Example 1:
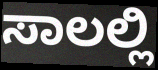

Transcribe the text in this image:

ಸಾಲಲ್ಲಿ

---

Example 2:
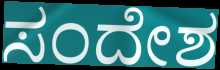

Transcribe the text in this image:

ಸಂದೇಶ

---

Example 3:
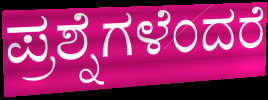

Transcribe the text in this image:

ಪ್ರಶ್ನೆಗಳೆಂದರೆ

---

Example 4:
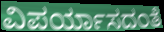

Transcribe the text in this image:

ವಿಪರ್ಯಾಸದಂತೆ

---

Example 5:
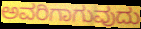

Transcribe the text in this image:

ಅವರಿಗಾಗುವುದು